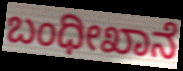
ಬಂಧೀಖಾನೆ